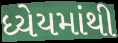
ધ્યેયમાંથી